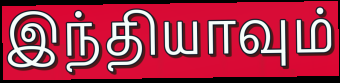
இந்தியாவும்